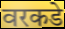
वरकडे